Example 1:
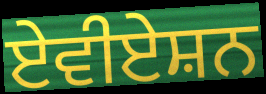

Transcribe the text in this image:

ਏਵੀਏਸ਼ਨ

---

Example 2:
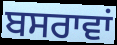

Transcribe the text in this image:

ਬਸਰਾਵਾਂ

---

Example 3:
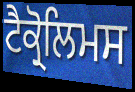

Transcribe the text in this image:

ਟੈਕ੍ਰੋਲਿਮਸ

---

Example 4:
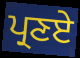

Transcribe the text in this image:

ਪ੍ਰਣਏ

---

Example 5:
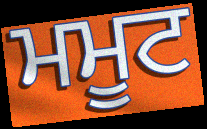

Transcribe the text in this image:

ਮਮੂਟ